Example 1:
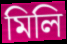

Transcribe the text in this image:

মিলি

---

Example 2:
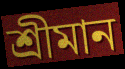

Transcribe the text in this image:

শ্ৰীমান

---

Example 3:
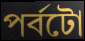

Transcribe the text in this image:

পৰ্বটো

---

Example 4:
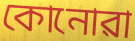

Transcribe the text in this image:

কোনোৱা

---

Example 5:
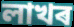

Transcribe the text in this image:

লাখৰ